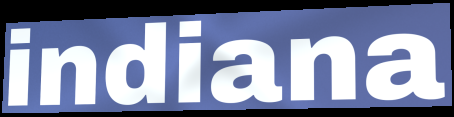
indiana